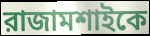
রাজামশাইকে